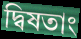
দ্বিষতাং